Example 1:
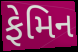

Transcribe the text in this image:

ફેમિન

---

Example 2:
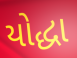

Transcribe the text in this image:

યોદ્ધા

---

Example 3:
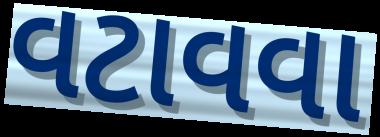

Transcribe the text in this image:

વટાવવા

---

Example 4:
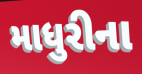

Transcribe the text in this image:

માધુરીના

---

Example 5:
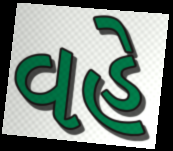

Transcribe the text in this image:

વહે